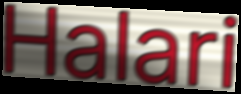
Halari